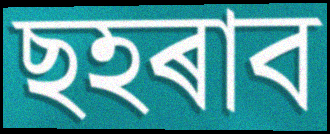
ছহৰাব